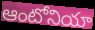
ఆంటోనియా